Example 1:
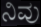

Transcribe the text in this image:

ನಿವು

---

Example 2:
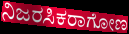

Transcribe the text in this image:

ನಿಜರಸಿಕರಾಗೋಣ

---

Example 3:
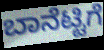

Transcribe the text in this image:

ಬಾನೆಟ್ಟಿಗೆ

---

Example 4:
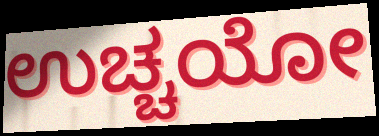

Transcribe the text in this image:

ಉಚ್ಚಯೋ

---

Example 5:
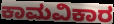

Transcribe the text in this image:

ಕಾಮವಿಕಾರ